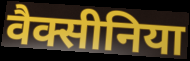
वैक्सीनिया